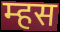
म्हस